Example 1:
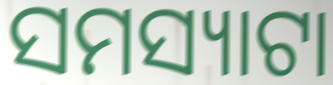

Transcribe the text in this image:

ସମସ୍ୟାଟା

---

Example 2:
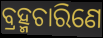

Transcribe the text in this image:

ବ୍ରହ୍ମଚାରିଣେ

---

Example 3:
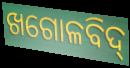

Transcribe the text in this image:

ଖଗୋଳବିଦ୍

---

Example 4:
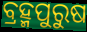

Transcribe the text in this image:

ବ୍ରହ୍ମପୁରୁଷ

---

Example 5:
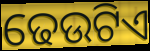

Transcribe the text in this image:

ଢେଉଟିଏ